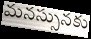
మనస్సునకు